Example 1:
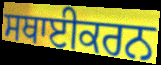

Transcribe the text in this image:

ਸਥਾਈਕਰਨ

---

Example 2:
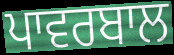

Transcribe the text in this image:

ਪਾਵਰਬਾਲ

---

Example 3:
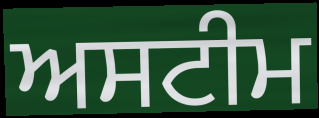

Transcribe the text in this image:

ਅਸਟੀਮ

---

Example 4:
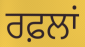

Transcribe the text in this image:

ਰਫ਼ਲਾਂ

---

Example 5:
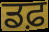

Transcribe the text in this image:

ਡਫ਼